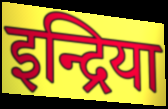
इन्द्रिया